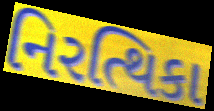
નિરત્થિકા